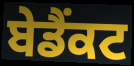
ਬੇਡੈਂਕਟ